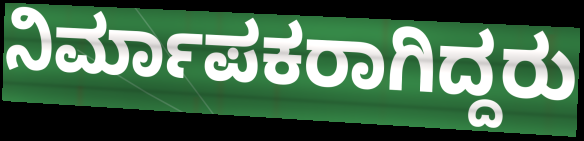
ನಿರ್ಮಾಪಕರಾಗಿದ್ದರು